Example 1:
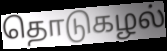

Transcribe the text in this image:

தொடுகழல்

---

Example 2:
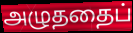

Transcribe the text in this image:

அழுததைப்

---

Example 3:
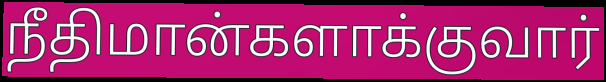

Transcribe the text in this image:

நீதிமான்களாக்குவார்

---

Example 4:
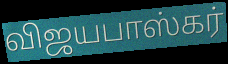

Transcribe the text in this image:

விஜயபாஸ்கர்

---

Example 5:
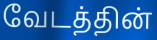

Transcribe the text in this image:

வேடத்தின்